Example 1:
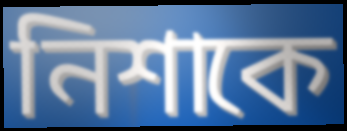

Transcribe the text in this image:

নিশাকে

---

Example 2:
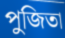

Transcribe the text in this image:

পুজিতা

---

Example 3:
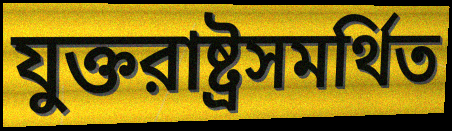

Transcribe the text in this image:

যুক্তরাষ্ট্রসমর্থিত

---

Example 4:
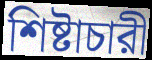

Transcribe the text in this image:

শিষ্টাচারী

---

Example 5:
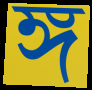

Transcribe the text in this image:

ঙ্গ